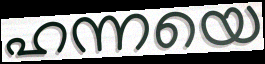
ഹന്നയെ